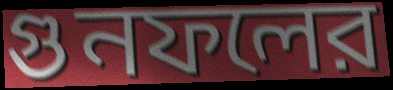
গুনফলের